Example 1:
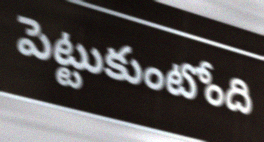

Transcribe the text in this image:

పెట్టుకుంటోంది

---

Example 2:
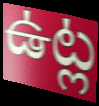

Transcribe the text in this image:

ఉట్ల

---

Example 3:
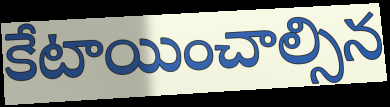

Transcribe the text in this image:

కేటాయించాల్సిన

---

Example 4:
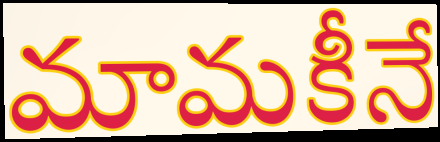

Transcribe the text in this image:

మామకీనే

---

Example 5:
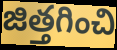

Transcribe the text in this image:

జిత్తగించి